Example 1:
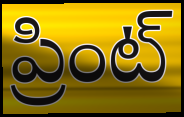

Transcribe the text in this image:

ప్రింట్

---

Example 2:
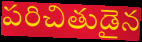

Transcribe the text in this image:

పరిచితుడైన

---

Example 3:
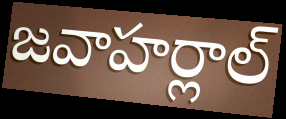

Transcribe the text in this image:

జవాహర్లాల్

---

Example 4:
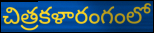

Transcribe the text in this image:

చిత్రకళారంగంలో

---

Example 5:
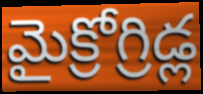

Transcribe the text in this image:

మైక్రోగ్రిడ్ల